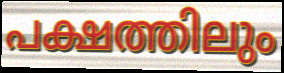
പക്ഷത്തിലും